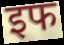
इफ